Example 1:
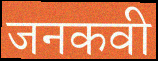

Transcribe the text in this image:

जनकवी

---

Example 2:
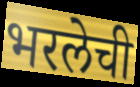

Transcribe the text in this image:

भरलेची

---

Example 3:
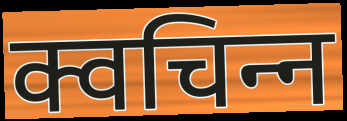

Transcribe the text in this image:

क्वचिन्न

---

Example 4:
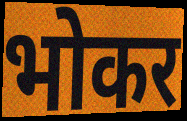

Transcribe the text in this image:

भोकर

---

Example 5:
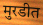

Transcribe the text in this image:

मुरडीत